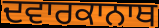
ਦਵਾਰਕਾਨਾਥ